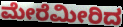
ಮೇರೆಮೀರಿದ